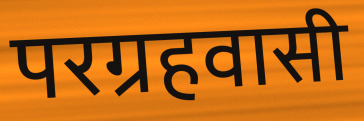
परग्रहवासी